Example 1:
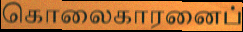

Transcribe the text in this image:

கொலைகாரனைப்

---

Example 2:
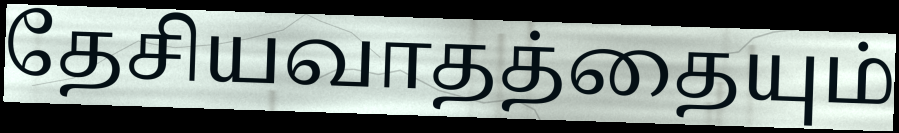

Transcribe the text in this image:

தேசியவாதத்தையும்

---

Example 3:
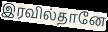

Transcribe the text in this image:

இரவில்தானே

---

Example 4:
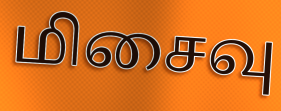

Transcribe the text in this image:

மிசைவு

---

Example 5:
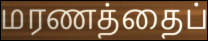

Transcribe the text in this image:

மரணத்தைப்